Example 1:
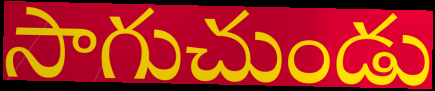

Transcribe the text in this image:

సాగుచుండు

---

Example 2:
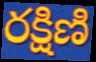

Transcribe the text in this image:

రక్షిణి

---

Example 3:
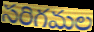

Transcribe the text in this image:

సరిగమల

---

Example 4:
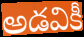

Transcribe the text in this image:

అడవికీ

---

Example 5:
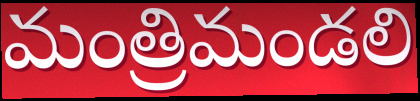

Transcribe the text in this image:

మంత్రిమండలి